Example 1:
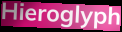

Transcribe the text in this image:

Hieroglyph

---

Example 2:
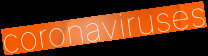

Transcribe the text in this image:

coronaviruses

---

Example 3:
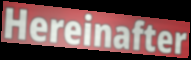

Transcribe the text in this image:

Hereinafter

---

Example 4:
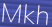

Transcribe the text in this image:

Mkh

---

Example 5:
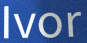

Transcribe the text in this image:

Ivor